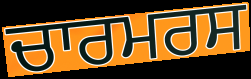
ਚਾਰਮਰਸ